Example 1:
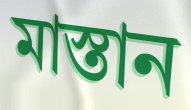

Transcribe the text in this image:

মাস্তান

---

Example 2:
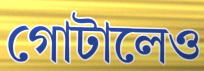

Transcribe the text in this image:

গোটালেও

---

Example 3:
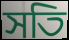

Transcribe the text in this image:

সতি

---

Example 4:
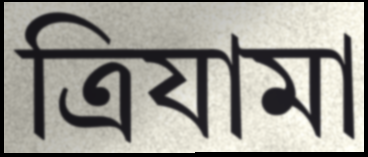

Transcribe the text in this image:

ত্রিযামা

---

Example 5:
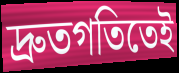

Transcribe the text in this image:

দ্রুতগতিতেই